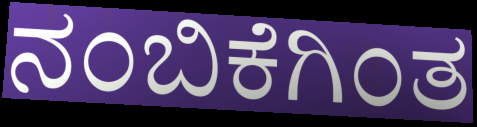
ನಂಬಿಕೆಗಿಂತ